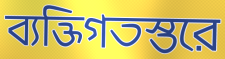
ব্যক্তিগতস্তরে